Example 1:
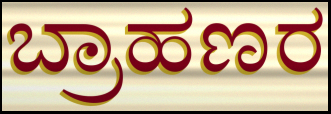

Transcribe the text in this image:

ಬ್ರಾಹಣರ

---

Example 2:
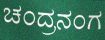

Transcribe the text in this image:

ಚಂದ್ರನಂಗ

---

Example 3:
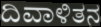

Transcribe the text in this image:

ದಿವಾಳಿತನ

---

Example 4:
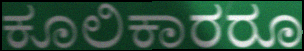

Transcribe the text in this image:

ಕೂಲಿಕಾರರೂ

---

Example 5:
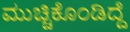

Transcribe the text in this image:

ಮುಚ್ಚಿಕೊಂಡಿದ್ದೆ